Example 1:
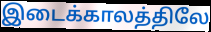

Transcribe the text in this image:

இடைக்காலத்திலே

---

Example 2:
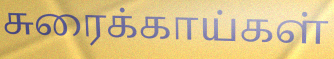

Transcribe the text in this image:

சுரைக்காய்கள்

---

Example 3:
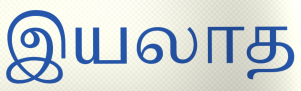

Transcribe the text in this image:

இயலாத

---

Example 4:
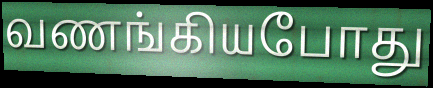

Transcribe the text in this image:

வணங்கியபோது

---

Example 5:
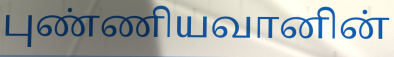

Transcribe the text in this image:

புண்ணியவானின்